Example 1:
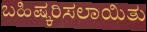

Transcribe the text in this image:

ಬಹಿಷ್ಕರಿಸಲಾಯಿತು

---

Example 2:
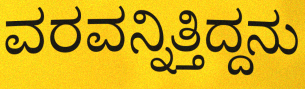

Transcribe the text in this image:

ವರವನ್ನಿತ್ತಿದ್ದನು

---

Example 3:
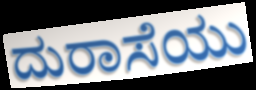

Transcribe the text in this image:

ದುರಾಸೆಯು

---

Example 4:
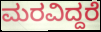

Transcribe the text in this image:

ಮರವಿದ್ದರೆ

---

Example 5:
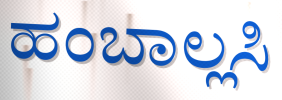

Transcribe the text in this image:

ಹಂಬಾಲ್ಲಸಿ